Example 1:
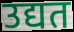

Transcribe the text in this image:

उद्यत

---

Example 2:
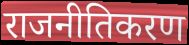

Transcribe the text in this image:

राजनीतिकरण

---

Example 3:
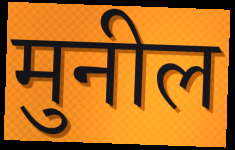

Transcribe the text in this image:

मुनील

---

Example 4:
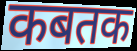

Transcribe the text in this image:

कबतक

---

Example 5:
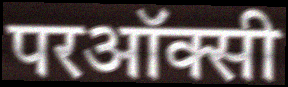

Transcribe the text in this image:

परऑक्सी